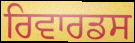
ਰਿਵਾਰਡਸ